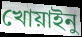
খোয়াইনু